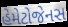
હેમેટોજેનસ